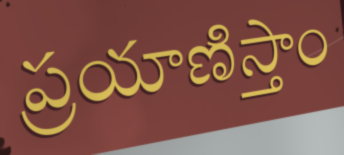
ప్రయాణిస్తాం